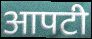
आपटी